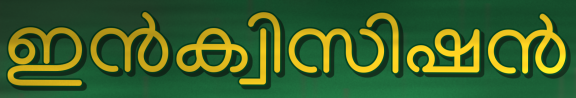
ഇൻക്വിസിഷൻ